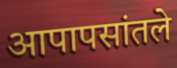
आपापसांतले